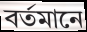
বর্তমানে